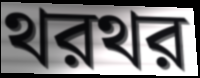
থরথর